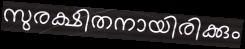
സുരക്ഷിതനായിരിക്കും